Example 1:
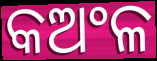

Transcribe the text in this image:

କଅଂଳ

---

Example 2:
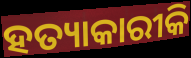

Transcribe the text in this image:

ହତ୍ୟାକାରୀକି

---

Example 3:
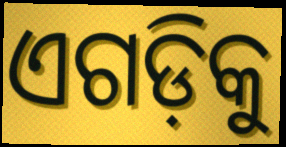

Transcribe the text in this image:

ଏଗଡ଼ିକୁ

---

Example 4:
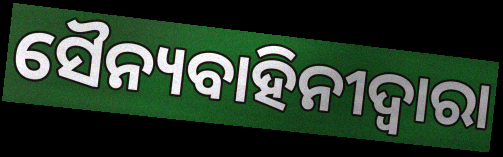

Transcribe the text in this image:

ସୈନ୍ୟବାହିନୀଦ୍ୱାରା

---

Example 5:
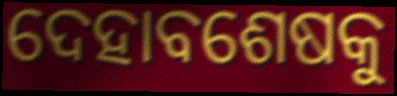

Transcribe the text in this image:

ଦେହାବଶେଷକୁ